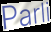
Parli